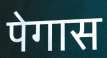
पेगास